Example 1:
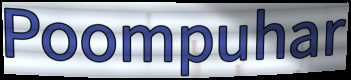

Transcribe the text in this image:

Poompuhar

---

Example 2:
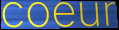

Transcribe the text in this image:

coeur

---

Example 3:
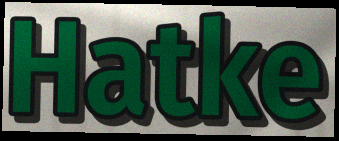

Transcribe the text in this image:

Hatke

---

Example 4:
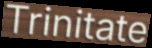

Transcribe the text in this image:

Trinitate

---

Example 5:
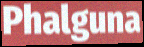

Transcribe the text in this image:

Phalguna